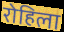
रोहिला